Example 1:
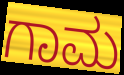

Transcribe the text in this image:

ಗಾಮ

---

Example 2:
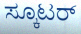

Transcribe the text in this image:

ಸ್ಕೂಟರ್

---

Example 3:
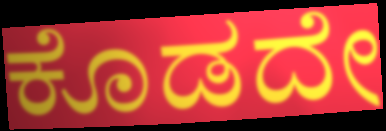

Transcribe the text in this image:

ಕೊಡದೇ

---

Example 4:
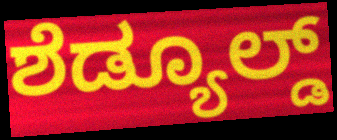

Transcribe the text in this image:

ಶೆಡ್ಯೂಲ್ಡ್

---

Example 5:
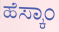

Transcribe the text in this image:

ಹೆಸ್ಕಾಂ